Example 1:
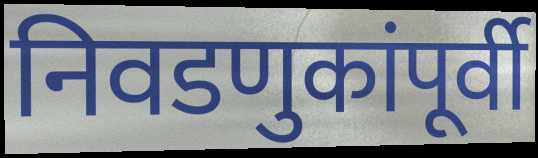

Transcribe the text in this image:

निवडणुकांपूर्वी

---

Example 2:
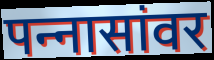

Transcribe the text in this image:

पन्नासांवर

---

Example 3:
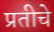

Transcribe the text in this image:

प्रतीचे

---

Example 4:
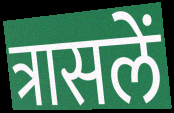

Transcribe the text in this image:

त्रासलें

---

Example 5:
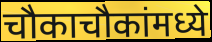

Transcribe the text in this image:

चौकाचौकांमध्ये